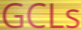
GCLs